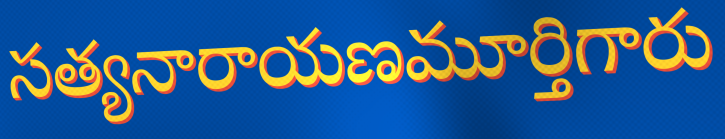
సత్యనారాయణమూర్తిగారు